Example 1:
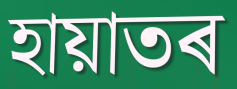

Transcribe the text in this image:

হায়াতৰ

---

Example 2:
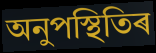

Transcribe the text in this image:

অনুপস্থিতিৰ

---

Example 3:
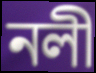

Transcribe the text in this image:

নলী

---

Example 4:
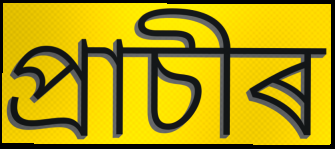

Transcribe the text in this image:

প্ৰাচীৰ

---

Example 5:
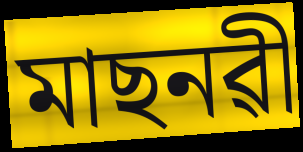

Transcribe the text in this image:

মাছনৱী